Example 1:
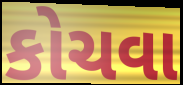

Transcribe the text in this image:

કોચવા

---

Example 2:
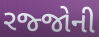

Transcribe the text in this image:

રજ્જોની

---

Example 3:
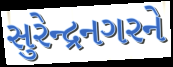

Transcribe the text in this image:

સુરેન્દ્રનગરને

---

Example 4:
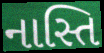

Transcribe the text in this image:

નાસ્તિ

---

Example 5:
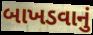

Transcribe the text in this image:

બાખડવાનું